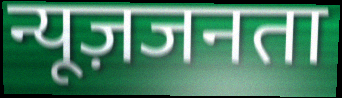
न्यूज़जनता